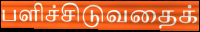
பளிச்சிடுவதைக்